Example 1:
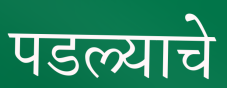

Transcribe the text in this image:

पडल्याचे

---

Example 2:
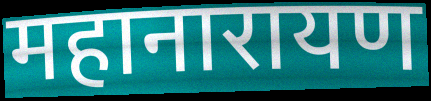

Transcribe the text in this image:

महानारायण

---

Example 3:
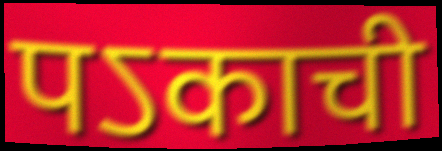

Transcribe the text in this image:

पऽकाची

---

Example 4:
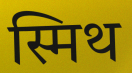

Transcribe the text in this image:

स्मिथ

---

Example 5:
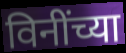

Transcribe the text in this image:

विनींच्या